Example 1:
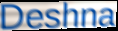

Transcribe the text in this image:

Deshna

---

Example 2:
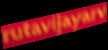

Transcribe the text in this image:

rutavijayarv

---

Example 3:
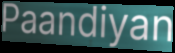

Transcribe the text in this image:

Paandiyan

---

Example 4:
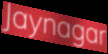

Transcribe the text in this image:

Jaynagar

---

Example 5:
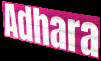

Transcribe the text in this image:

Adhara